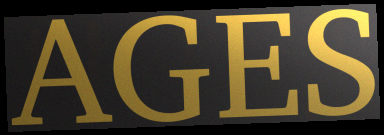
AGES